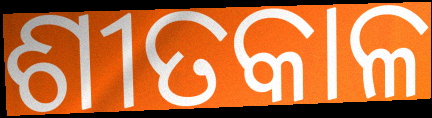
ଶୀତକାଳ